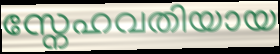
സ്നേഹവതിയായ